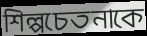
শিল্পচেতনাকে